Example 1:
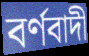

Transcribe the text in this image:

বর্ণবাদী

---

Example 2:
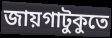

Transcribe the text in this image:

জায়গাটুকুতে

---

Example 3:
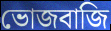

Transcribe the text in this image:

ভোজবাজি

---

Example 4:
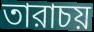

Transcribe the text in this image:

তারাচয়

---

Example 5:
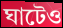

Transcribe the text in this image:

ঘাটেও